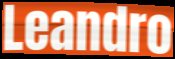
Leandro